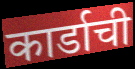
कार्डाची